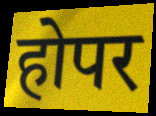
होपर